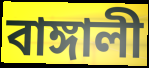
বাঙ্গালী